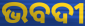
ଭବଦୀ